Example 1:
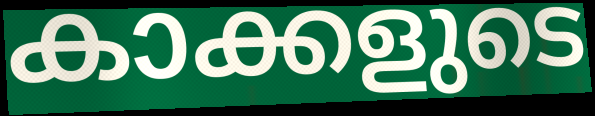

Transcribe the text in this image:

കാക്കളുടെ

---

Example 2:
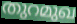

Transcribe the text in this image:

തുറമുഖ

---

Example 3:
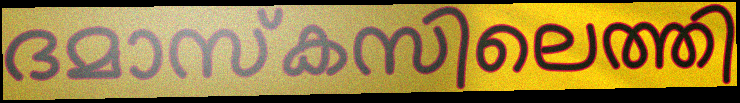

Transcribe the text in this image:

ദമാസ്കസിലെത്തി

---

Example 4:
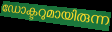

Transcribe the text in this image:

ഡോക്ടറുമായിരുന്ന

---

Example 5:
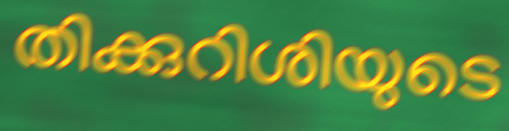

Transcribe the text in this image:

തിക്കുറിശിയുടെ